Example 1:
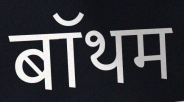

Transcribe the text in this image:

बॉथम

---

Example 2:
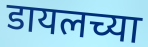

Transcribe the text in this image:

डायलच्या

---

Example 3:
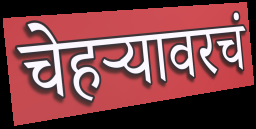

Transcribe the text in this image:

चेहर्‍यावरचं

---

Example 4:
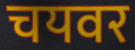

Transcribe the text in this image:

चयवर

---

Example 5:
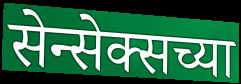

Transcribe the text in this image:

सेन्सेक्सच्या